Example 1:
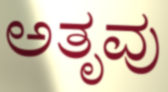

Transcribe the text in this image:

ಅತೃವು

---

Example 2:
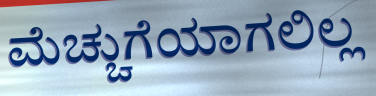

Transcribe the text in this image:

ಮೆಚ್ಚುಗೆಯಾಗಲಿಲ್ಲ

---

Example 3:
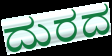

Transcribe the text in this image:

ದುರದ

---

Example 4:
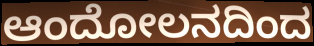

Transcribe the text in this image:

ಆಂದೋಲನದಿಂದ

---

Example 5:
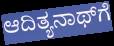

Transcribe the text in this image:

ಆದಿತ್ಯನಾಥ್‌ಗೆ